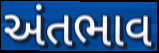
અંતભાવ